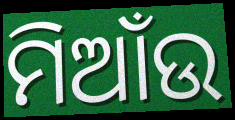
ମିଆଁଉ